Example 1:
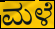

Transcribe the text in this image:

ಮಳೆ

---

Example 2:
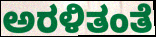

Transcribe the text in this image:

ಅರಳಿತಂತೆ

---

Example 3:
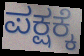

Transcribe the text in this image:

ಪಕ್ಷಕ್ಕೆ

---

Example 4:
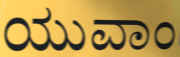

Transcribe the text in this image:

ಯುವಾಂ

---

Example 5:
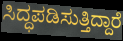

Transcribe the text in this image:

ಸಿದ್ಧಪಡಿಸುತ್ತಿದ್ದಾರೆ